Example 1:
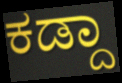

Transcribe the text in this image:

ಕಡ್ದಾ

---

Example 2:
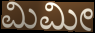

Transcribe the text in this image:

ಮಿಮೀ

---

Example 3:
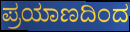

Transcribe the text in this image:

ಪ್ರಯಾಣದಿಂದ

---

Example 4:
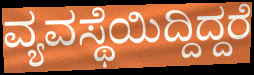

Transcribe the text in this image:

ವ್ಯವಸ್ಥೆಯಿದ್ದಿದ್ದರೆ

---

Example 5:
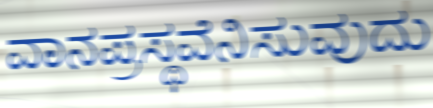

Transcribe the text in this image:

ವಾನಪ್ರಸ್ಥವೆನಿಸುವುದು